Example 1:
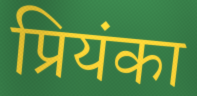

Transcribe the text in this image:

प्रियंका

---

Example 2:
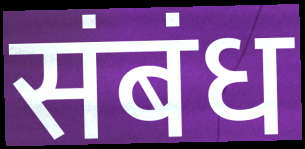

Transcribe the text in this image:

संबंध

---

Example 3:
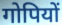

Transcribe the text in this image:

गोपियों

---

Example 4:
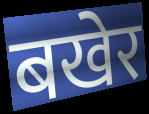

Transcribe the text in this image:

बखेर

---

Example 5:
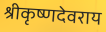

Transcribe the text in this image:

श्रीकृष्णदेवराय